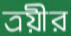
ত্রয়ীর